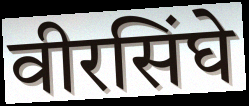
वीरसिंघे